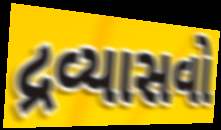
દ્રવ્યાસવો